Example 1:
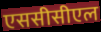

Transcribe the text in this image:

एससीसीएल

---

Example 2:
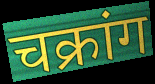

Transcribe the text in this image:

चक्रांग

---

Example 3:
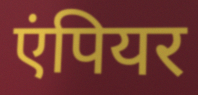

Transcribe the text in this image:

एंपियर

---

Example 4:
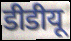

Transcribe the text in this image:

डीडीयू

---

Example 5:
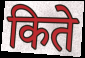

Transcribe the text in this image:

किते